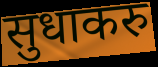
सुधाकरु